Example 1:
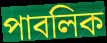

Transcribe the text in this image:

পাবলিক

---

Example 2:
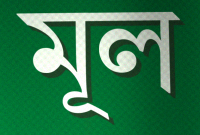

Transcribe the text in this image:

মূল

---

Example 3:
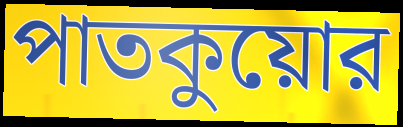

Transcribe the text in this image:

পাতকুয়োর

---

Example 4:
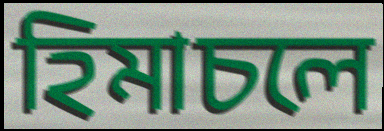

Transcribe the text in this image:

হিমাচলে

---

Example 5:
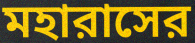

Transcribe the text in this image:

মহারাসের